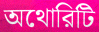
অথোরিটি